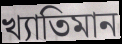
খ্যাতিমান